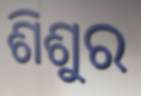
ଶିଶୁର